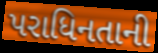
પરાધિનતાની